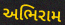
અભિરામ